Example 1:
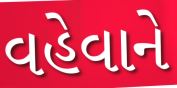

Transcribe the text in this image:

વહેવાને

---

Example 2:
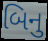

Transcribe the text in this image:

બિનુ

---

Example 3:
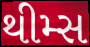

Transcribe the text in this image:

થીમ્સ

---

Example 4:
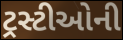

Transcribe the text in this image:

ટ્રસ્ટીઓની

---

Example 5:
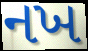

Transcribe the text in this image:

નખ